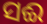
ସଈ